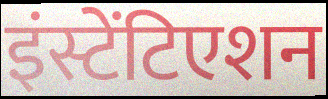
इंस्टेंटिएशन